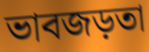
ভাবজড়তা